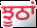
ਝੂਠਾਂ